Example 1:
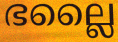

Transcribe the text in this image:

ഭല്ലൈ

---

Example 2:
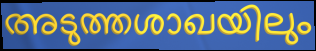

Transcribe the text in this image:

അടുത്തശാഖയിലും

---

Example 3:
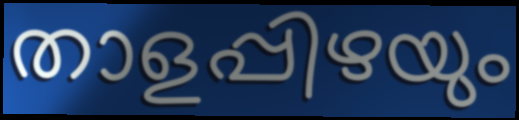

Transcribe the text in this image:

താളപ്പിഴയും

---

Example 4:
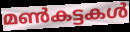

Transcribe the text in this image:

മൺകട്ടകൾ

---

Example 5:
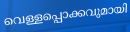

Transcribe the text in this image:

വെള്ളപ്പൊക്കവുമായി